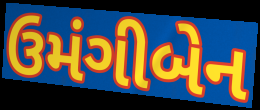
ઉમંગીબેન